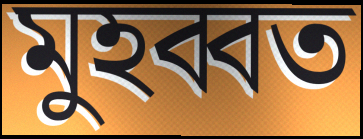
মুহব্বত